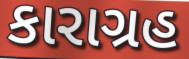
કારાગ્રહ